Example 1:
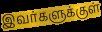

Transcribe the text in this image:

இவர்களுக்குள்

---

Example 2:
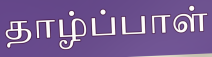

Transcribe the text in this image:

தாழ்ப்பாள்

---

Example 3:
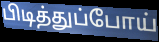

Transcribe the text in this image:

பிடித்துப்போய்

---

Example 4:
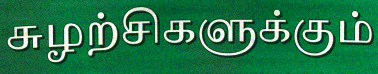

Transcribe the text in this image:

சுழற்சிகளுக்கும்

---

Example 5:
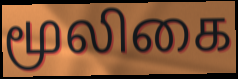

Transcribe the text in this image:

மூலிகை